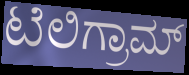
ಟೆಲಿಗ್ರಾಮ್